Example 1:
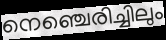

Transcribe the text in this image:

നെഞ്ചെരിച്ചിലും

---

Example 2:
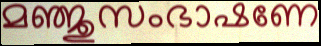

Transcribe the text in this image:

മഞ്ജുസംഭാഷണേ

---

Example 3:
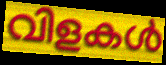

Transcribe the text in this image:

വിളകൾ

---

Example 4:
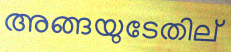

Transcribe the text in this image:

അങ്ങയുടേതില്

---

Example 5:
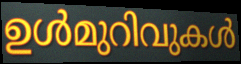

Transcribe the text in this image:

ഉൾമുറിവുകൾ